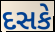
દસકે